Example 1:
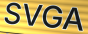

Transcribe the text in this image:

SVGA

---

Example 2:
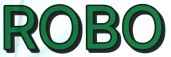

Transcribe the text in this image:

ROBO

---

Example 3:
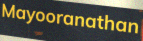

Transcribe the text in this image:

Mayooranathan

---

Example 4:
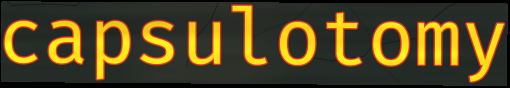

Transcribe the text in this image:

capsulotomy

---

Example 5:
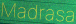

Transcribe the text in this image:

Madrasa